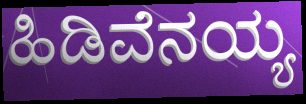
ಹಿಡಿವೆನಯ್ಯ